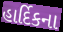
હાર્દિકના